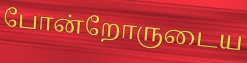
போன்றோருடைய